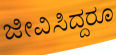
ಜೀವಿಸಿದ್ದರೂ